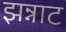
झन्नाट